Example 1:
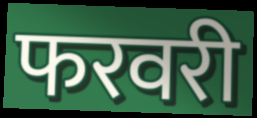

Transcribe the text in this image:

फरवरी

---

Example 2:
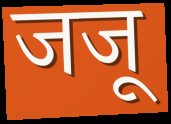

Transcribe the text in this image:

जजू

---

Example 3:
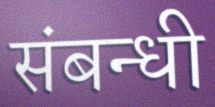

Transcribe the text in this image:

संबन्धी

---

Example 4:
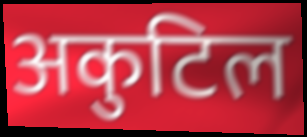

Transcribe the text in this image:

अकुटिल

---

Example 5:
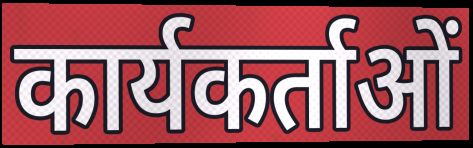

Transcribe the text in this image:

कार्यकर्ताओं